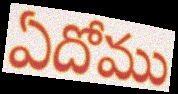
ఏదోము